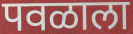
पवळाला